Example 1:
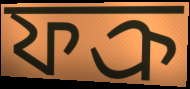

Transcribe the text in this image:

ফক্র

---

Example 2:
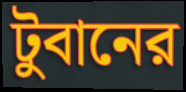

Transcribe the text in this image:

টুবানের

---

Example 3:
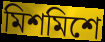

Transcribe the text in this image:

মিশমিশে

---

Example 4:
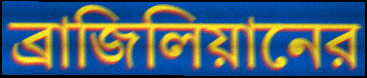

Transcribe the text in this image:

ব্রাজিলিয়ানের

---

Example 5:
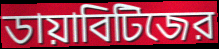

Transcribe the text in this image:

ডায়াবিটিজের